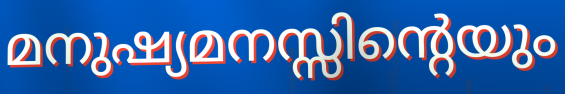
മനുഷ്യമനസ്സിന്റെയും